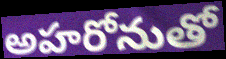
అహరోనుతో